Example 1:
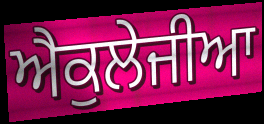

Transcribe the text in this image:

ਐਕੁਲੇਜੀਆ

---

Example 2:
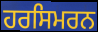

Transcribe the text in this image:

ਹਰਸਿਮਰਨ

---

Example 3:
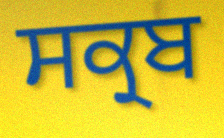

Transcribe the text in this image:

ਸਕ੍ਰਬ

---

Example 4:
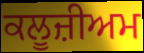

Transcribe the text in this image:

ਕਲੂਜ਼ੀਅਮ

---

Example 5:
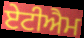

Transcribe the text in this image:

ਏਟੀਐਮ